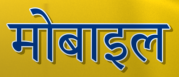
मोबाइल